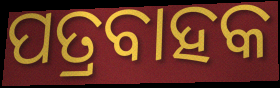
ପତ୍ରବାହକ